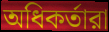
অধিকর্তারা